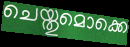
ചെയ്തുമൊക്കെ